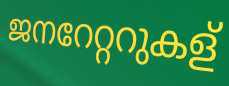
ജനറേറ്ററുകള്